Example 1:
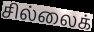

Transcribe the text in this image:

சில்லைக்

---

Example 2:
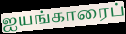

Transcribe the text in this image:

ஐயங்காரைப்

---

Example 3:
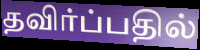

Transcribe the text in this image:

தவிர்ப்பதில்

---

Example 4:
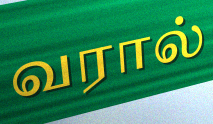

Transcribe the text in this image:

வரால்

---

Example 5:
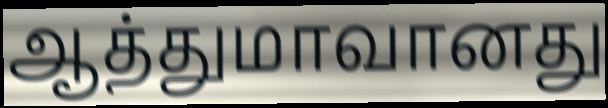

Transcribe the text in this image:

ஆத்துமாவானது